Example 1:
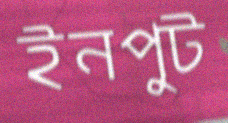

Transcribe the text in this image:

ইনপুট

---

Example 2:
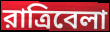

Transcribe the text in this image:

রাত্রিবেলা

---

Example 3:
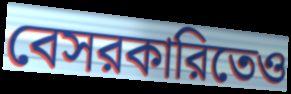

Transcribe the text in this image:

বেসরকারিতেও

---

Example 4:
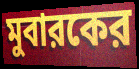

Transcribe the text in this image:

মুবারকের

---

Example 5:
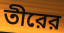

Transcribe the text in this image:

তীরের